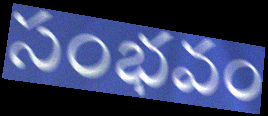
సంభవం